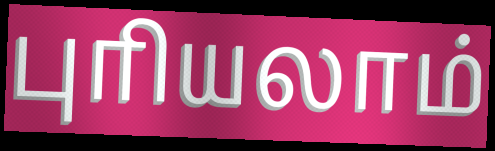
புரியலாம்